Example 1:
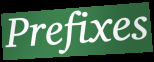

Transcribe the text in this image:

Prefixes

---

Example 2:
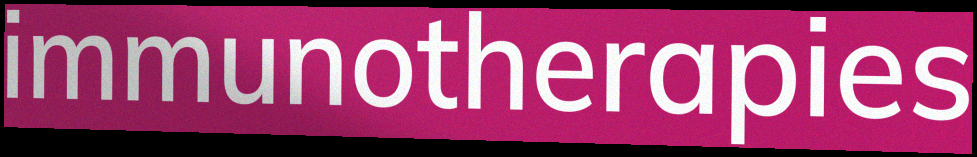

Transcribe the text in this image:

immunotherapies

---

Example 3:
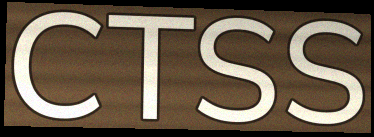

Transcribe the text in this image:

CTSS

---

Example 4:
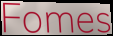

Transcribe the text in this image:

Fomes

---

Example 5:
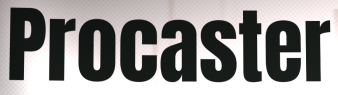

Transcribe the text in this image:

Procaster